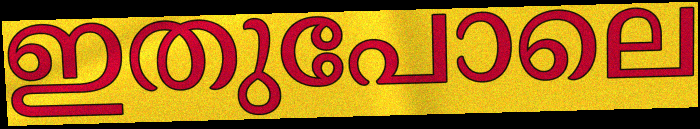
ഇതുപോലെ